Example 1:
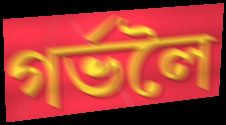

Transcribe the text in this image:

গৰ্ভলৈ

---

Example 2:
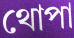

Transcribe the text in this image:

থোপা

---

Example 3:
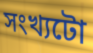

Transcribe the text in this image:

সংখ্যটো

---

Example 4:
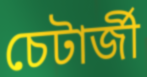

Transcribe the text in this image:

চেটাৰ্জী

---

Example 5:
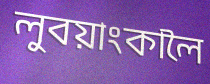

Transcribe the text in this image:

লুবয়াংকালৈ